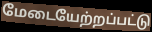
மேடையேற்றப்பட்டு